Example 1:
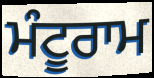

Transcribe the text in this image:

ਮੰਟੂਰਾਮ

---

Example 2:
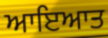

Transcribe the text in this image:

ਆਇਆਤ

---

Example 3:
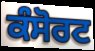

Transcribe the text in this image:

ਕੰਸੋਰਟ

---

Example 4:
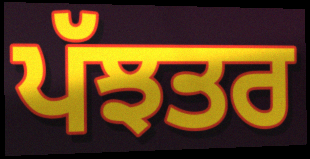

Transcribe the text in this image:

ਪੱਝਤਰ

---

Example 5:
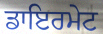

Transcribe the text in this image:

ਡਾਇਰਮੇਟ